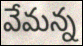
వేమన్న